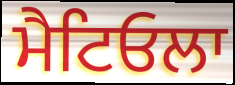
ਮੈਟਿਓਲਾ